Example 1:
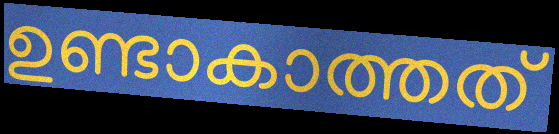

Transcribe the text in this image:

ഉണ്ടാകാത്തത്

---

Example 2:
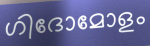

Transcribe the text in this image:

ഗിദോമോളം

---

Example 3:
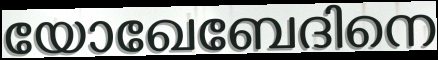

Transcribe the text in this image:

യോഖേബേദിനെ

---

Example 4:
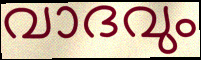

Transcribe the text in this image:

വാദവും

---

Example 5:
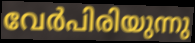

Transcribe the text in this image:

വേർപിരിയുന്നു